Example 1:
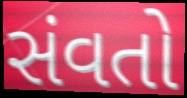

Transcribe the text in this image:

સંવતો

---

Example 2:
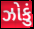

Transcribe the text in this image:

ઝોકું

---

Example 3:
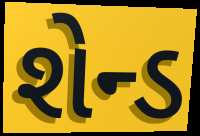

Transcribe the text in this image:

શેન્ડ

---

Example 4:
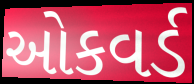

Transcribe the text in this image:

ઓકવર્ડ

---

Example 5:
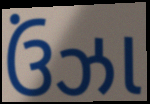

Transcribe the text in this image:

ઉંઝા